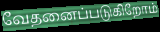
வேதனைப்படுகிறோம்